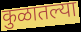
कुळातल्या